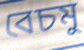
বেচমু